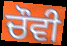
ਚੌਵੀ